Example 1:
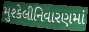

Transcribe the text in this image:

મુશ્કેલીનિવારણમાં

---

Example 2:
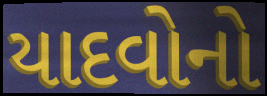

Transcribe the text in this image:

યાદવોનો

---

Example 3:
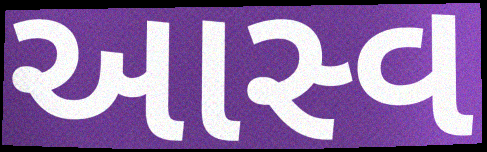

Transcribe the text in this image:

આસ્વ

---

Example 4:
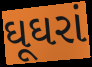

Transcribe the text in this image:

ઘૂઘરાં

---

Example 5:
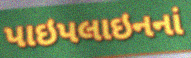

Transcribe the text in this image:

પાઇપલાઇનનાં